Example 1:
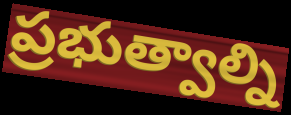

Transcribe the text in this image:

ప్రభుత్వాల్ని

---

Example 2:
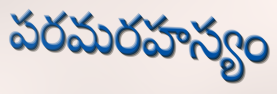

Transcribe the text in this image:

పరమరహస్యం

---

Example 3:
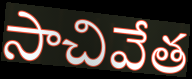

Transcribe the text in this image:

సాచివేత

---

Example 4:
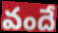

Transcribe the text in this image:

వందే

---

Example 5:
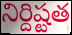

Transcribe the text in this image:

నిర్దిష్టత